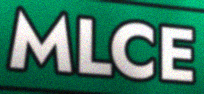
MLCE